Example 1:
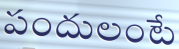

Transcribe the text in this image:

పందులంటే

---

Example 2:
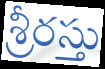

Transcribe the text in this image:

శ్రీరస్తు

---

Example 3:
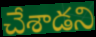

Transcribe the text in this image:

చేశాడని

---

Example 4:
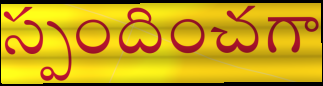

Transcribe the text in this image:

స్పందించగా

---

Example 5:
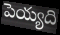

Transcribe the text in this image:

పెయ్యది